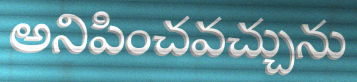
అనిపించవచ్చును